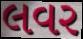
લવર